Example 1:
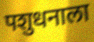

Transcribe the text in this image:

पशुधनाला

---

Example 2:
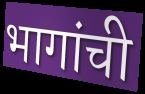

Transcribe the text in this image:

भागांची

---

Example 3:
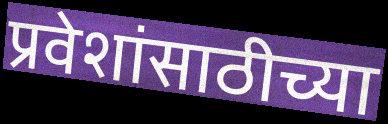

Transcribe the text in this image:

प्रवेशांसाठीच्या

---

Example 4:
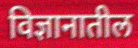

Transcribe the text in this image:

विज्ञानातील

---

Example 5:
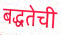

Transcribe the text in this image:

बद्धतेची